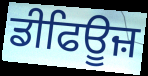
ਡੀਫਿਊਜ਼